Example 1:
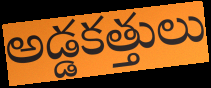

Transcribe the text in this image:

అడ్డకత్తులు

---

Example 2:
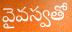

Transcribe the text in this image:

వైవస్వతో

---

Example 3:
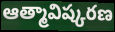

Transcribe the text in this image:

ఆత్మావిష్కరణ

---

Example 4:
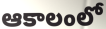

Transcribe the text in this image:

ఆకాలంలో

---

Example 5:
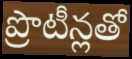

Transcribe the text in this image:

ప్రొటీన్లతో